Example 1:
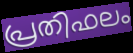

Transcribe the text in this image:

പ്രതിഫലം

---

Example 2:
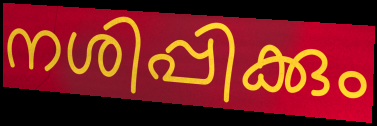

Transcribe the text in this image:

നശിപ്പിക്കും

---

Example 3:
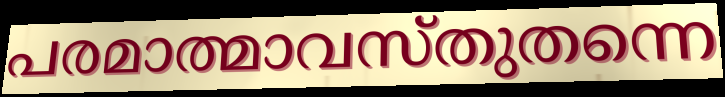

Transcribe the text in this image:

പരമാത്മാവസ്തുതന്നെ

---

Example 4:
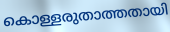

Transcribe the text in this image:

കൊള്ളരുതാത്തതായി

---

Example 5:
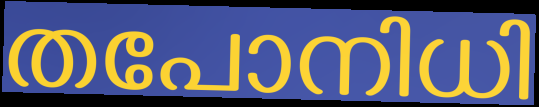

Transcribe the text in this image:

തപോനിധി